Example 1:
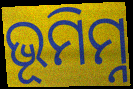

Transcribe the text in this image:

ଭୂମିମ୍ନ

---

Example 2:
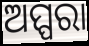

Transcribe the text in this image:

ଅପ୍ପରା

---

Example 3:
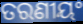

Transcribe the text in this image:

ତରଣୀୟଂ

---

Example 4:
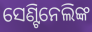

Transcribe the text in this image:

ସେଣ୍ଟିନେଲିଙ୍କ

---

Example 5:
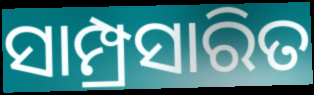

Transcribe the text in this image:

ସାମ୍ପ୍ରସାରିତ